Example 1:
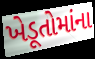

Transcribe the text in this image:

ખેડૂતોમાંના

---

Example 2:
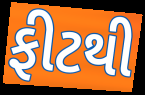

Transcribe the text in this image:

ફીટથી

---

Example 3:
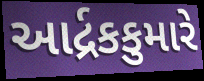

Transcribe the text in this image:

આર્દ્રકકુમારે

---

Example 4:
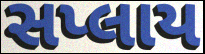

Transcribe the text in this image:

સપ્લાય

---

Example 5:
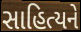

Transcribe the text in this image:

સાહિત્યને